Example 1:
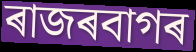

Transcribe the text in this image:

ৰাজৰবাগৰ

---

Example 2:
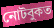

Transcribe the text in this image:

নোটবুকত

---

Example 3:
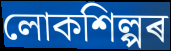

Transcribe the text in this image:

লোকশিল্পৰ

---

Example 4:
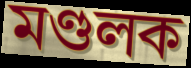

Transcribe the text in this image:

মণ্ডলক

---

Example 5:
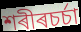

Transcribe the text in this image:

শৰীৰচৰ্চা